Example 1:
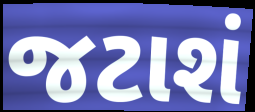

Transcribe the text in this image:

જટાશં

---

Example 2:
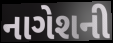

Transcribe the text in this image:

નાગેશની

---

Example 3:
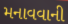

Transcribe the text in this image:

મનાવવાની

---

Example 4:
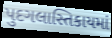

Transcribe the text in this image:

પુદગલાસ્તિકાયમાં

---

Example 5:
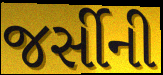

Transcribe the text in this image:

જર્સીની